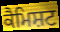
ਕੈਮਿਸ਼ਟ